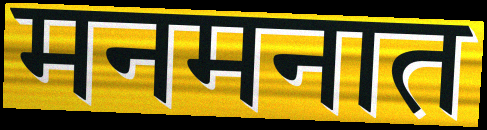
मनमनात